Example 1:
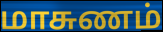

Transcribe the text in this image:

மாசுணம்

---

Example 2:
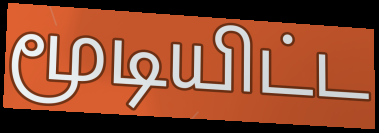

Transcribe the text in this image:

மூடியிட்ட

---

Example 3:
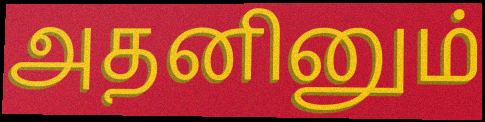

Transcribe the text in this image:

அதனினும்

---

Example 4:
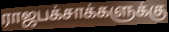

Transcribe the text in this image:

ராஜபக்சாக்களுக்கு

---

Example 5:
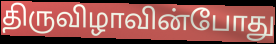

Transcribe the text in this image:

திருவிழாவின்போது